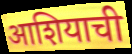
आशियाची